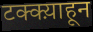
टक्क्य़ाहून